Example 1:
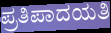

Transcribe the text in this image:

ಪ್ರತಿಪಾದಯತಿ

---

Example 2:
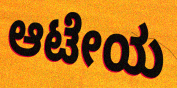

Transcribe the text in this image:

ಆಟೇಯ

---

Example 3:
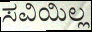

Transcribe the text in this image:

ಸವಿಯಿಲ್ಲ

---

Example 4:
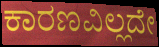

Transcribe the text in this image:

ಕಾರಣವಿಲ್ಲದೇ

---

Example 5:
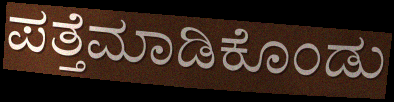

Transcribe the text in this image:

ಪತ್ತೆಮಾಡಿಕೊಂಡು